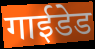
गाईडेड